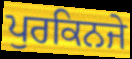
ਪੁਰਕਿਨਜੇ